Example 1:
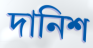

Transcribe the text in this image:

দানিশ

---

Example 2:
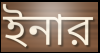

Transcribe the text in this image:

ইনার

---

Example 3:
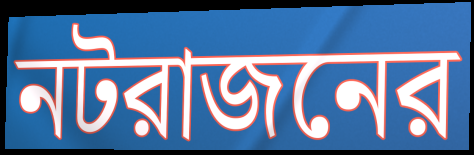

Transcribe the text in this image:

নটরাজনের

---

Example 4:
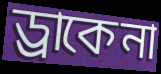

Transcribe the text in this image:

ড্রাকেনা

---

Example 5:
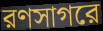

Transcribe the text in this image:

রণসাগরে